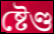
ষ্টেণ্ড